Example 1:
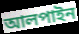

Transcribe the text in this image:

আলপাইন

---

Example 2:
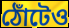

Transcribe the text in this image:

ঠোঁটেও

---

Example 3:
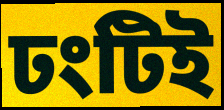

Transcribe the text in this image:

ঢংটিই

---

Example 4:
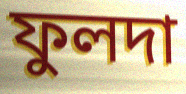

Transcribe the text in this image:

ফুলদা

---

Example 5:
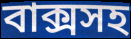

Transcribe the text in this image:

বাক্সসহ